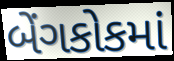
બેંગકોકમાં